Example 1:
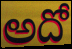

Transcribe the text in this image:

అదో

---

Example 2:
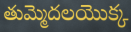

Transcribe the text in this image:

తుమ్మెదలయొక్క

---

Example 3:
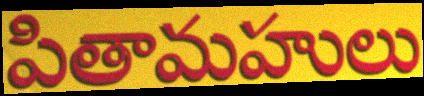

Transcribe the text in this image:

పితామహులు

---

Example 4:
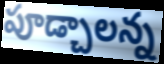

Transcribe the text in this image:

పూడ్చాలన్న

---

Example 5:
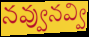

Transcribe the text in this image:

నవ్వునవ్వి